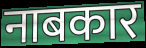
नाबकार